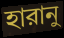
হারানু